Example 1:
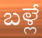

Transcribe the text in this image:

బళ్లే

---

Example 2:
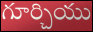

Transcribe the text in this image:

గూర్చియు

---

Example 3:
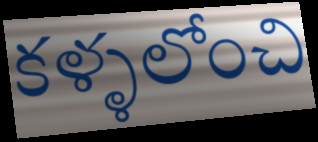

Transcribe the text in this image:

కళ్ళలోంచి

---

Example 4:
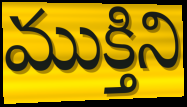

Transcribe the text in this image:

ముక్తిని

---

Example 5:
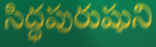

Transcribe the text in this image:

సిద్ధపురుషుని